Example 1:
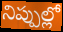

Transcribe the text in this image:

నిప్పుల్లో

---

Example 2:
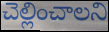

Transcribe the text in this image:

చెల్లించాలని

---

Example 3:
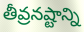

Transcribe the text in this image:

తీవ్రనష్టాన్ని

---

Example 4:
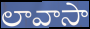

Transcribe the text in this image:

లావాసా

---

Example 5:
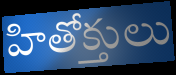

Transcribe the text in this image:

హితోక్తులు